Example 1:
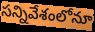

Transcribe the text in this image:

సన్నివేశంలోనూ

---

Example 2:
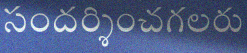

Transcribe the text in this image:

సందర్శించగలరు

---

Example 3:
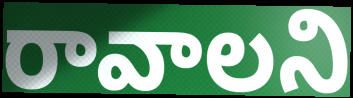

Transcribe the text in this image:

రావాలని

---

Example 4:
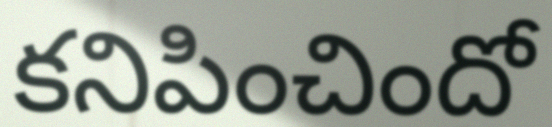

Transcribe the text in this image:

కనిపించిందో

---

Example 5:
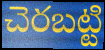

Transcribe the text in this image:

చెరబట్టి